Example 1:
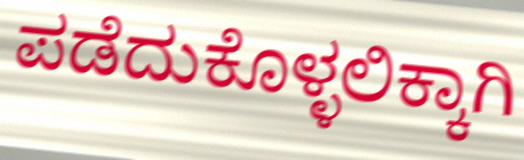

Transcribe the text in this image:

ಪಡೆದುಕೊಳ್ಳಲಿಕ್ಕಾಗಿ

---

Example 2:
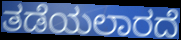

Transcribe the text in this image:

ತಡೆಯಲಾರದೆ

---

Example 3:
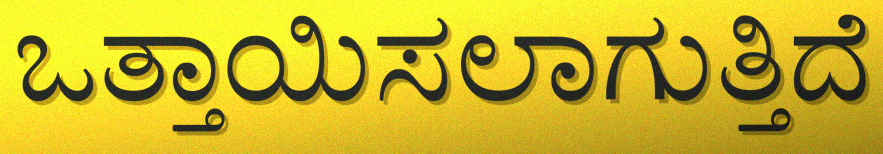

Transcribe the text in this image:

ಒತ್ತಾಯಿಸಲಾಗುತ್ತಿದೆ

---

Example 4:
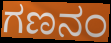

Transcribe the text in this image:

ಗಣನಂ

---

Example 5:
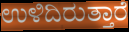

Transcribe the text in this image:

ಉಳಿದಿರುತ್ತಾರೆ